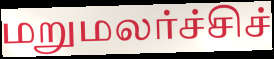
மறுமலர்ச்சிச்